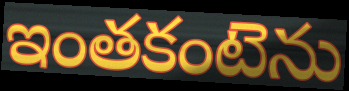
ఇంతకంటెను